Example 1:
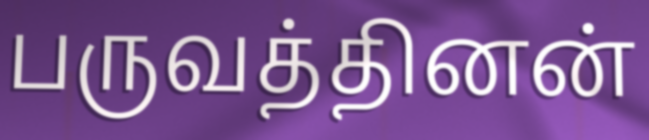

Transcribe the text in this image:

பருவத்தினன்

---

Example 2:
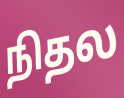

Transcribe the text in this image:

நிதல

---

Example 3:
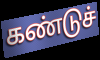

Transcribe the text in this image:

கண்டுச்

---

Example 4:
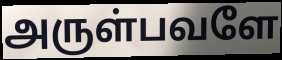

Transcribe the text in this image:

அருள்பவளே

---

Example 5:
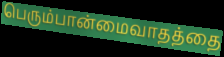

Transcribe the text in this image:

பெரும்பான்மைவாதத்தை